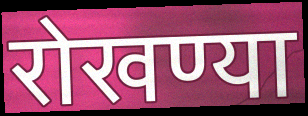
रोखण्या